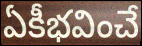
ఏకీభవించే